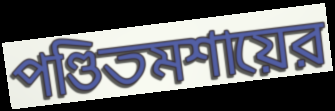
পণ্ডিতমশায়ের